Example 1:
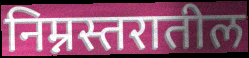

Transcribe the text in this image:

निम्नस्तरातील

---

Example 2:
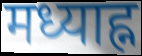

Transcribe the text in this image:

मध्याह्न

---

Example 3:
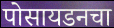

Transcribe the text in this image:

पोसायडनचा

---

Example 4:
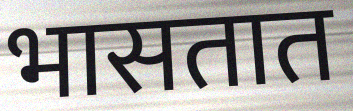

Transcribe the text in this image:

भासतात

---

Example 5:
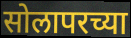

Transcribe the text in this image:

सोलापरच्या